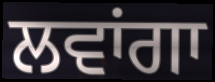
ਲਵਾਂਗਾ